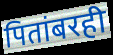
पितांबरही